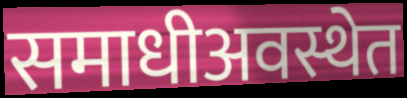
समाधीअवस्थेत